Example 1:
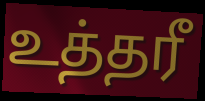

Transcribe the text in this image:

உத்தரீ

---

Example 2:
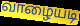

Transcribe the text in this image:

வாழையடி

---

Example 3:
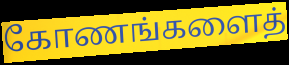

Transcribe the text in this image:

கோணங்களைத்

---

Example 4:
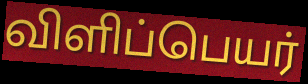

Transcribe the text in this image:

விளிப்பெயர்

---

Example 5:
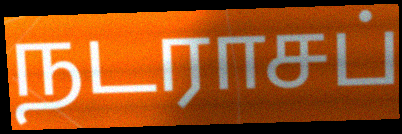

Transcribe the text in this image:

நடராசப்